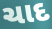
ચાદ